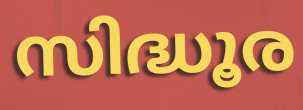
സിദ്ധൂര